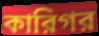
কারিগর